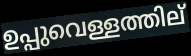
ഉപ്പുവെള്ളത്തില്